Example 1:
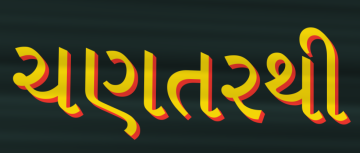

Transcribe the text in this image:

ચણતરથી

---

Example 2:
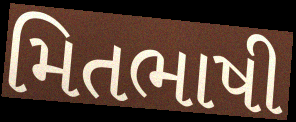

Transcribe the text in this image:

મિતભાષી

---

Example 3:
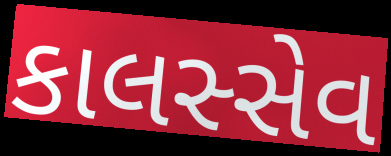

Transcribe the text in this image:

કાલસ્સેવ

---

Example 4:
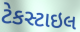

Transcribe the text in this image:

ટેકસ્ટાઇલ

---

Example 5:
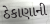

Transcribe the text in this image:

ઠેકાણાની